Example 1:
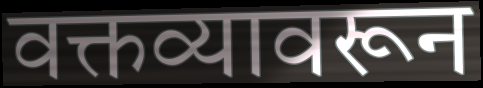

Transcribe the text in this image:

वक्तव्यावरून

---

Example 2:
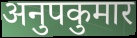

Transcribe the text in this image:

अनुपकुमार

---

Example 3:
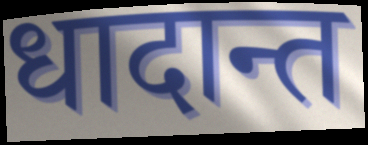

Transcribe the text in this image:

धादान्त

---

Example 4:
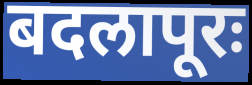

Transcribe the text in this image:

बदलापूरः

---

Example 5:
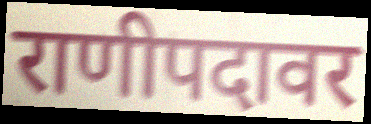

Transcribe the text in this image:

राणीपदावर